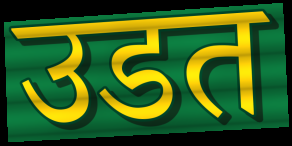
उडत